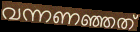
വന്നണഞ്ഞത്